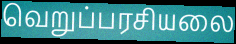
வெறுப்பரசியலை